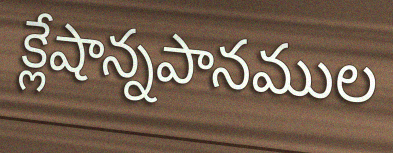
క్లేషాన్నపానముల